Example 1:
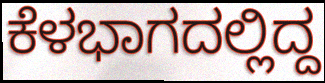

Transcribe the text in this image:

ಕೆಳಭಾಗದಲ್ಲಿದ್ದ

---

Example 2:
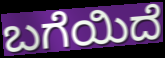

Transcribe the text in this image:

ಬಗೆಯಿದೆ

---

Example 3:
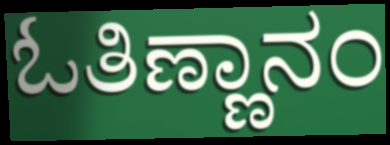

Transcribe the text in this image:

ಓತಿಣ್ಣಾನಂ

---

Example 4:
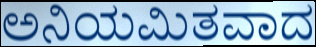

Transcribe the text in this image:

ಅನಿಯಮಿತವಾದ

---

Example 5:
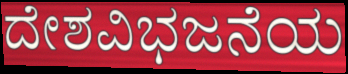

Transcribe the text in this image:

ದೇಶವಿಭಜನೆಯ